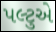
પલ્ટુએ